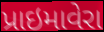
પ્રાઇમાવેરા